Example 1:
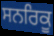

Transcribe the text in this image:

ਸਨਰਿਕੂ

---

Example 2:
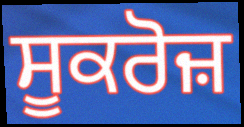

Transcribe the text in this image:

ਸੂਕਰੋਜ਼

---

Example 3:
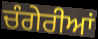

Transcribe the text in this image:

ਚੰਗੇਰੀਆਂ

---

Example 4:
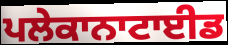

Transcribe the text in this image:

ਪਲੇਕਾਨਾਟਾਈਡ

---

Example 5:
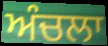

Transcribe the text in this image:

ਅੰਚਲਾ